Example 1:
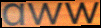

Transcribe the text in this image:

aww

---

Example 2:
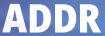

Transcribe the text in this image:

ADDR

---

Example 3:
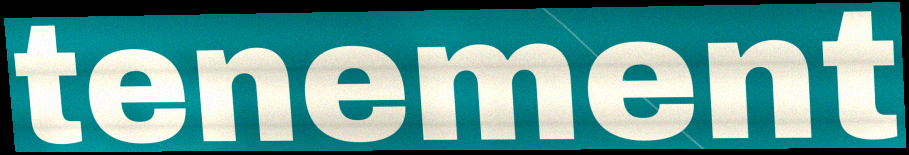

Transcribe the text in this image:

tenement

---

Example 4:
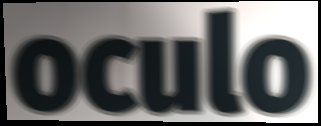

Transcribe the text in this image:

oculo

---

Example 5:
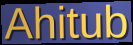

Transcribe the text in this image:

Ahitub